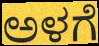
ಅಳಗೆ